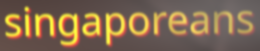
singaporeans